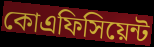
কোএফিসিয়েন্ট